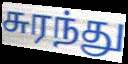
சுரந்து